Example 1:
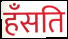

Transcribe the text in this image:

हँसति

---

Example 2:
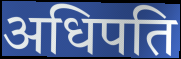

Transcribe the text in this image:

अधिपति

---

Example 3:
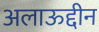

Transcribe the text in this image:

अलाऊद्दीन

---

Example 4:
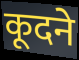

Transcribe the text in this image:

कूदने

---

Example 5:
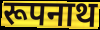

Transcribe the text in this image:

रूपनाथ